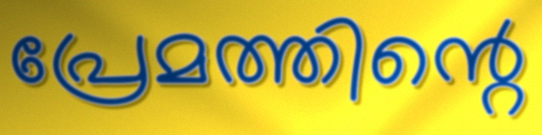
പ്രേമത്തിന്റെ